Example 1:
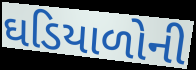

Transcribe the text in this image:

ઘડિયાળોની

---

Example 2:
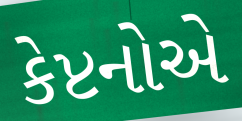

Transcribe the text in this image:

કેપ્ટનોએ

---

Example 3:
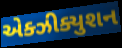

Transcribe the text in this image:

એક્ઝીક્યુશન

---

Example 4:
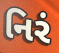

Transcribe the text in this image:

નિરં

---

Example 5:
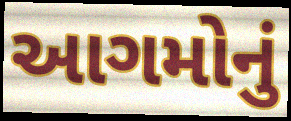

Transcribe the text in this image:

આગમોનું